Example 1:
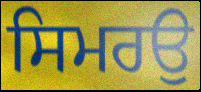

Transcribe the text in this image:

ਸਿਮਰਉ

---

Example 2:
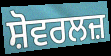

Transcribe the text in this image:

ਸ਼ੋਵਰਲਜ਼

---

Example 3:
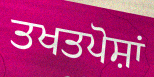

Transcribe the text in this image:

ਤਖਤਪੋਸ਼ਾਂ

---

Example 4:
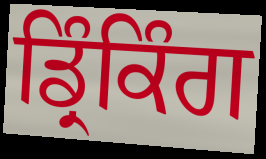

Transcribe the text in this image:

ਡ੍ਰਿੰਕਿੰਗ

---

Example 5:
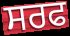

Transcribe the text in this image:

ਸਰਫ